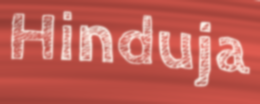
Hinduja